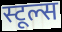
स्टूल्स